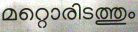
മറ്റൊരിടത്തും